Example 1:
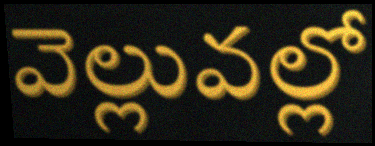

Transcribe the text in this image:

వెల్లువల్లో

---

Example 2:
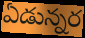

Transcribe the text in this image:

ఏడున్నర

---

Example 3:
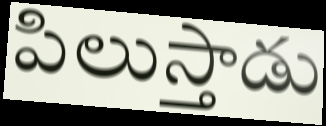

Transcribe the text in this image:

పిలుస్తాడు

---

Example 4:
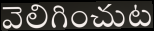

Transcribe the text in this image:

వెలిగించుట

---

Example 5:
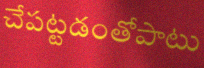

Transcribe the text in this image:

చేపట్టడంతోపాటు